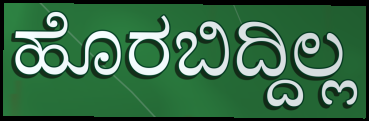
ಹೊರಬಿದ್ದಿಲ್ಲ